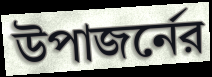
উপাজর্নের